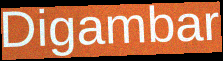
Digambar